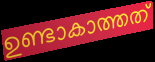
ഉണ്ടാകാത്തത്